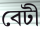
বেটী